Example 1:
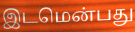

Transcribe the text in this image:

இடமென்பது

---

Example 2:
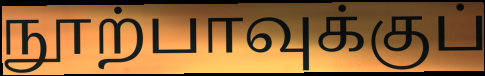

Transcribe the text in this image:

நூற்பாவுக்குப்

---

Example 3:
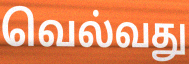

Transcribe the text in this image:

வெல்வது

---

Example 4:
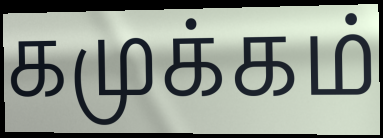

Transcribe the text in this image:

கமுக்கம்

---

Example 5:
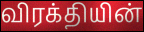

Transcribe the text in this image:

விரக்தியின்